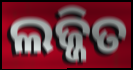
ଲଜ୍ଜିତ